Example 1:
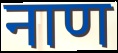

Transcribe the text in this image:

नाण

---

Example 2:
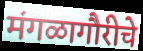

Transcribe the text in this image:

मंगळागौरीचे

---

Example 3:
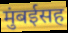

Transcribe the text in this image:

मुंबईसह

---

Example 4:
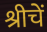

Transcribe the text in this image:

श्रीचें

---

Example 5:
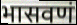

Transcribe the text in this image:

भासवणं